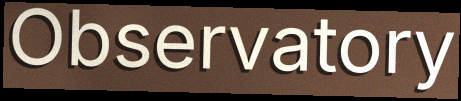
Observatory